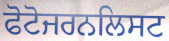
ਫੋਟੋਜਰਨਲਿਸਟ